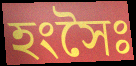
হংসৈঃ